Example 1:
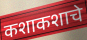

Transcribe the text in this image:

कशाकशाचे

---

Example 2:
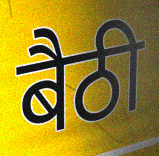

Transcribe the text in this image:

बैठी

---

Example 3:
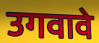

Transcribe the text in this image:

उगवावे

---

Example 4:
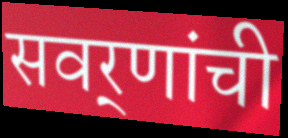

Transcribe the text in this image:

सवर्णांची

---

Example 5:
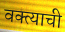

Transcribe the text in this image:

वक्त्याची